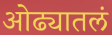
ओढ्यातलं